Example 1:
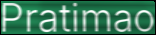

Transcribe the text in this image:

Pratimao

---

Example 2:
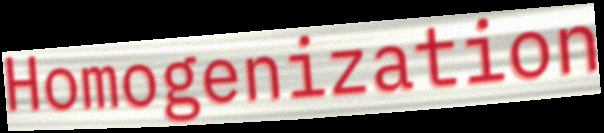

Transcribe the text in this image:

Homogenization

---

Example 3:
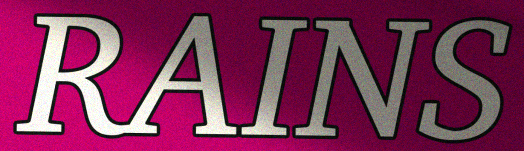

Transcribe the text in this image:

RAINS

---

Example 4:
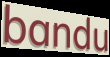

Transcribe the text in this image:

bandu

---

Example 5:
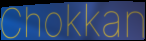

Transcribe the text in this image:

Chokkan